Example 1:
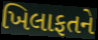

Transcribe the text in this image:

ખિલાફતને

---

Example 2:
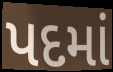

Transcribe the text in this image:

પદમાં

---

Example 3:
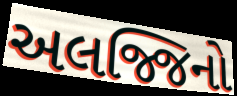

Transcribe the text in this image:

અલજ્જિનો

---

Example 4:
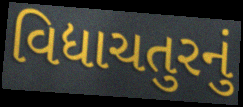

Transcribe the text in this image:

વિદ્યાચતુરનું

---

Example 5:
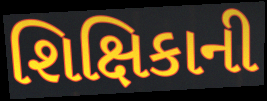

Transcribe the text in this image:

શિક્ષિકાની